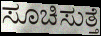
ಸೂಚಿಸುತ್ತೆ